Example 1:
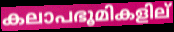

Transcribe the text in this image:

കലാപഭൂമികളില്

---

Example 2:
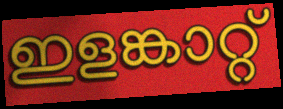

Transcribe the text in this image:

ഇളങ്കാറ്റ്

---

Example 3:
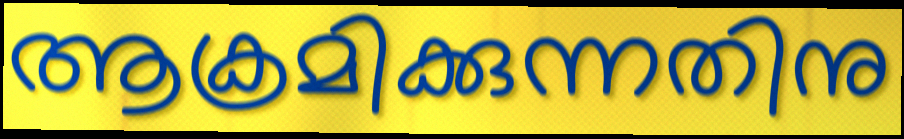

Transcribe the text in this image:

ആക്രമിക്കുന്നതിനു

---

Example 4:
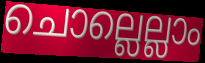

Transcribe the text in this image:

ചൊല്ലെല്ലാം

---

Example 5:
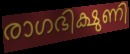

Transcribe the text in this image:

രാഗഭിക്ഷുണി